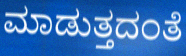
ಮಾಡುತ್ತದಂತೆ